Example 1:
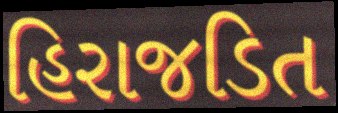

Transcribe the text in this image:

હિરાજડિત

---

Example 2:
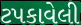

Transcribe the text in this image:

ટપકાવેલી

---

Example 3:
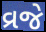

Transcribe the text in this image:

વ્રજે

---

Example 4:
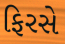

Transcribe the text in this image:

ફિરસે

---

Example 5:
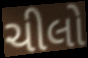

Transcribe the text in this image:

ચીલો